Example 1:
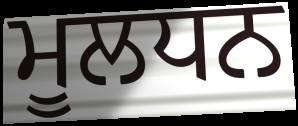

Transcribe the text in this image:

ਮੂਲਧਨ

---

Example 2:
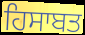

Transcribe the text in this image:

ਹਿਸਾਬਤ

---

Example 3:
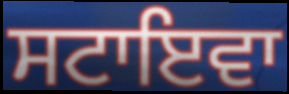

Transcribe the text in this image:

ਸਟਾਇਵਾ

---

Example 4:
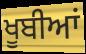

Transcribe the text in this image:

ਖੂਬੀਆਂ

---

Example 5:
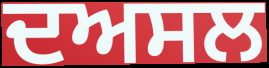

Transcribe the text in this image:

ਦਅਸਲ